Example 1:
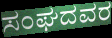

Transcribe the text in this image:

ಸಂಘದವರ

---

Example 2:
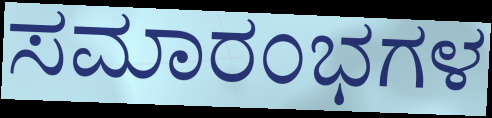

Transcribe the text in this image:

ಸಮಾರಂಭಗಳ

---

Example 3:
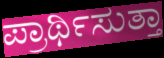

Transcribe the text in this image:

ಪ್ರಾರ್ಥಿಸುತ್ತಾ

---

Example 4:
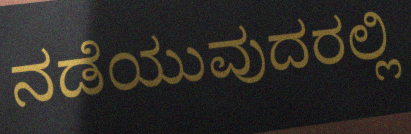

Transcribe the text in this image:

ನಡೆಯುವುದರಲ್ಲಿ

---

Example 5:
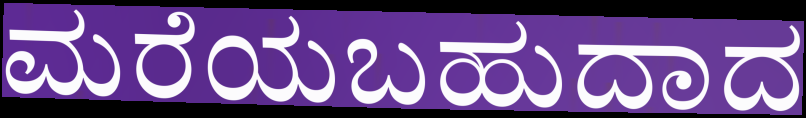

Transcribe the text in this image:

ಮರೆಯಬಹುದಾದ